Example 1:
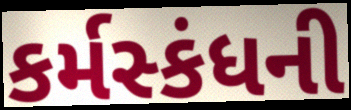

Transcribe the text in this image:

કર્મસ્કંધની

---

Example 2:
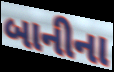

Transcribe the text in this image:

બાનીના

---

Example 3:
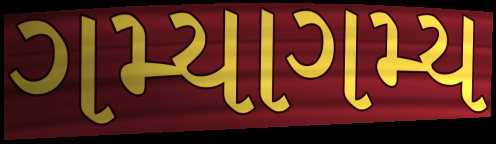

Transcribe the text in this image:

ગમ્યાગમ્ય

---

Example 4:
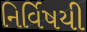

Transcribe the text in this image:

નિર્વિષયી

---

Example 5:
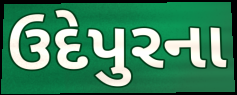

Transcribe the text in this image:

ઉદેપુરના